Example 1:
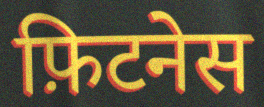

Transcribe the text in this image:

फ़िटनेस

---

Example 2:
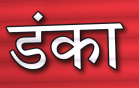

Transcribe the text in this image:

डंका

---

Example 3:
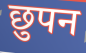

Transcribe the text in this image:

छुपन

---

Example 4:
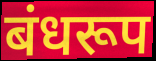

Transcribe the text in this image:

बंधरूप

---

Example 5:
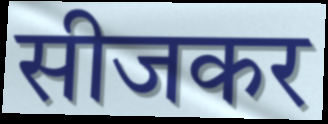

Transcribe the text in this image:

सीजकर